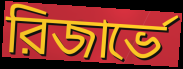
রিজার্ভে